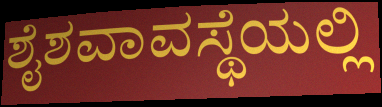
ಶೈಶವಾವಸ್ಥೆಯಲ್ಲಿ